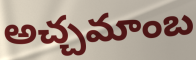
అచ్చమాంబ